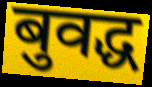
बुवद्ध